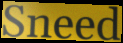
Sneed